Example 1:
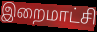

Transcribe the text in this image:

இறைமாட்சி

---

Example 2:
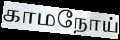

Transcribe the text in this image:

காமநோய்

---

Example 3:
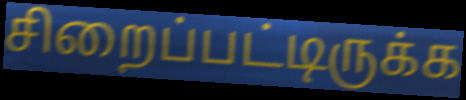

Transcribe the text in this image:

சிறைப்பட்டிருக்க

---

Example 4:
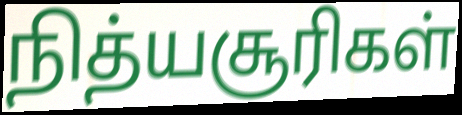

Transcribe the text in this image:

நித்யசூரிகள்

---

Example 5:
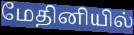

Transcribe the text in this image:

மேதினியில்